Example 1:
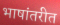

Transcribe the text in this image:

भाषांतरीत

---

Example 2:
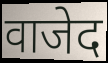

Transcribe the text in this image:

वाजेद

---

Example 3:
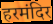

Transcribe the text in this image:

हरमंदिर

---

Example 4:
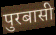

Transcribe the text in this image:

पुरबासी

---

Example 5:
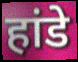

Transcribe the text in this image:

हांडे